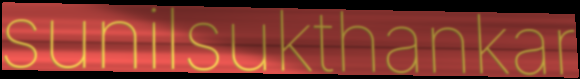
sunilsukthankar